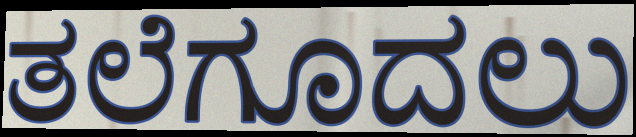
ತಲೆಗೂದಲು